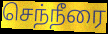
செந்நீரை